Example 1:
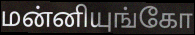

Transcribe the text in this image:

மன்னியுங்கோ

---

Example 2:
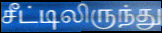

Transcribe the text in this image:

சீட்டிலிருந்து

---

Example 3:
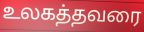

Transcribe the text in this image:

உலகத்தவரை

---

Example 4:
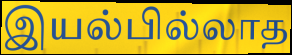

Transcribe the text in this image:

இயல்பில்லாத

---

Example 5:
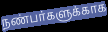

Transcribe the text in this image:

நண்பர்களுக்காக